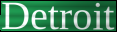
Detroit